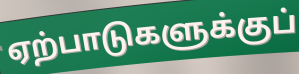
ஏற்பாடுகளுக்குப்